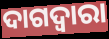
ଦାଗଦ୍ୱାରା